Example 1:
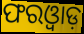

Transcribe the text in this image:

ଫରଓ୍ୱାଡ଼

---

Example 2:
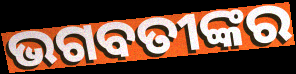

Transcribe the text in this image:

ଭଗବତୀଙ୍କର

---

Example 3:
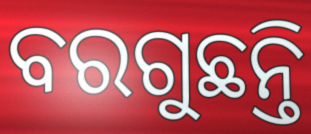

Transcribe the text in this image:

ବରଗୁଛନ୍ତି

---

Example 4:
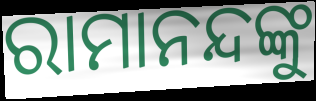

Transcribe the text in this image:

ରାମାନନ୍ଦଙ୍କୁ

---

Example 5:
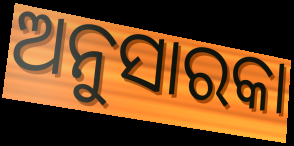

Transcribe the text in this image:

ଅନୁସାରକା